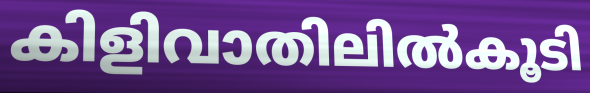
കിളിവാതിലിൽകൂടി